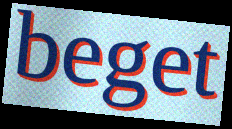
beget